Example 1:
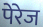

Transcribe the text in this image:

पेरेज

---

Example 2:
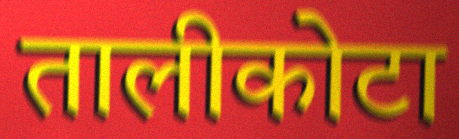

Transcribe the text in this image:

तालीकोटा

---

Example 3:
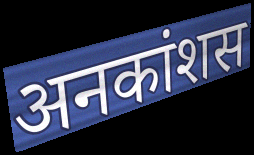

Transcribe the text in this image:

अनकांशस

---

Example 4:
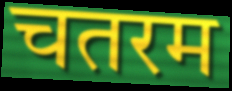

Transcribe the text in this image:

चतरम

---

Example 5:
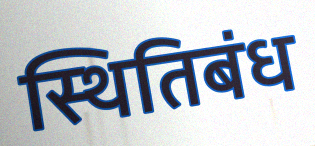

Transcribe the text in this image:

स्थितिबंध